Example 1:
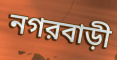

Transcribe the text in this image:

নগরবাড়ী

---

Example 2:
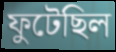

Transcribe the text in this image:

ফুটেছিল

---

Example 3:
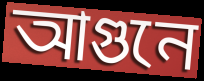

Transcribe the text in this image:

আগুনে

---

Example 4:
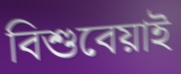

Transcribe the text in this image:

বিশুবেয়াই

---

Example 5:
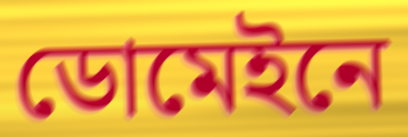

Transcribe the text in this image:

ডোমেইনে